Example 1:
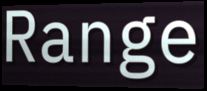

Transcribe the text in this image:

Range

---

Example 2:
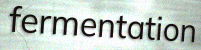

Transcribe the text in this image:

fermentation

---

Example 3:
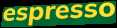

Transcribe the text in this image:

espresso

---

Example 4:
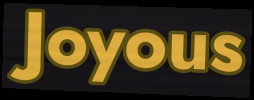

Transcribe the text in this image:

Joyous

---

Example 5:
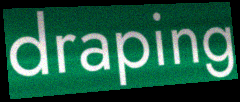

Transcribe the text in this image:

draping